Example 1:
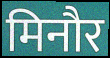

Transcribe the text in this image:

मिनौर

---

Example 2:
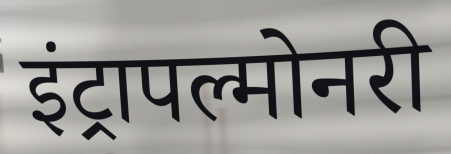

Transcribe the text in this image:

इंट्रापल्मोनरी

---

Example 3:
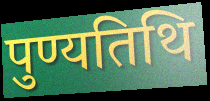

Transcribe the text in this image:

पुण्यतिथि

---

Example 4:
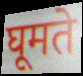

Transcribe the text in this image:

घूमते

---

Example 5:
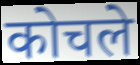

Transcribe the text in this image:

कोचले